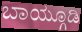
ಬಾಯ್ಗೂಡಿ